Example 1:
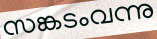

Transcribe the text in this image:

സങ്കടംവന്നു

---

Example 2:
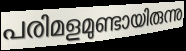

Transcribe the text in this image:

പരിമളമുണ്ടായിരുന്നു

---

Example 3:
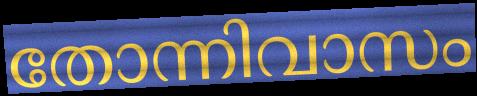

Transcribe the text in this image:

തോന്നിവാസം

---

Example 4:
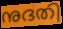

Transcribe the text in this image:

നുദതി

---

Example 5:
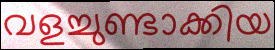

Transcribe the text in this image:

വളച്ചുണ്ടാക്കിയ